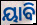
ୟାବି